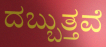
ದಬ್ಬುತ್ತವೆ